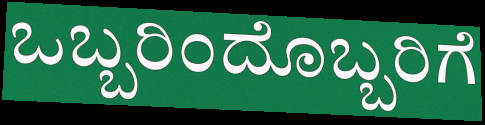
ಒಬ್ಬರಿಂದೊಬ್ಬರಿಗೆ